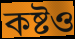
কষ্টও